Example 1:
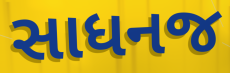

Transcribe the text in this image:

સાધનજ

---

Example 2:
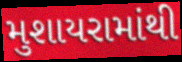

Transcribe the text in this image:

મુશાયરામાંથી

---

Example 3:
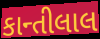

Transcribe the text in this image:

કાન્તીલાલ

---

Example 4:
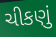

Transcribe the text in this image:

ચીકણું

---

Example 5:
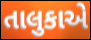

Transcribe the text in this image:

તાલુકાએ